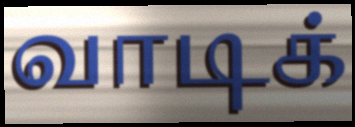
வாடிக்